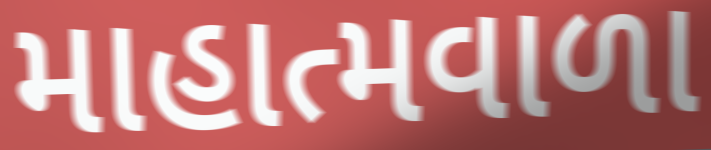
માહાત્મવાળા